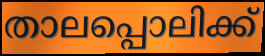
താലപ്പൊലിക്ക്